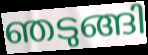
ഞടുങ്ങി